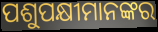
ପଶୁପକ୍ଷୀମାନଙ୍କର